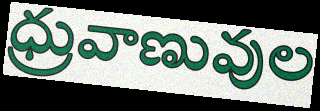
ధ్రువాణువుల